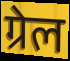
ग्रेल